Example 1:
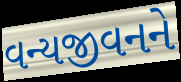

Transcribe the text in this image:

વન્યજીવનને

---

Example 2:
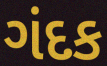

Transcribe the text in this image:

ગંદક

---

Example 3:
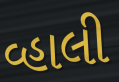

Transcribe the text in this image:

વ્હાલી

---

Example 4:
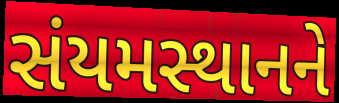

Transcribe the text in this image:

સંયમસ્થાનને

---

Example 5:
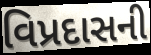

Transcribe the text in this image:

વિપ્રદાસની